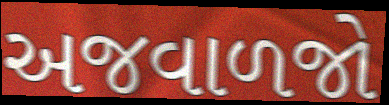
અજવાળજો